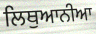
ਲਿਥੁਆਨੀਆ